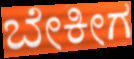
ಬೇಕೀಗ